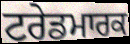
ਟਰੇਡਮਾਰਕ